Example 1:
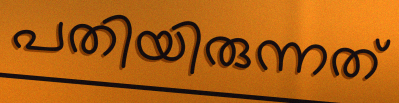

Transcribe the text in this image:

പതിയിരുന്നത്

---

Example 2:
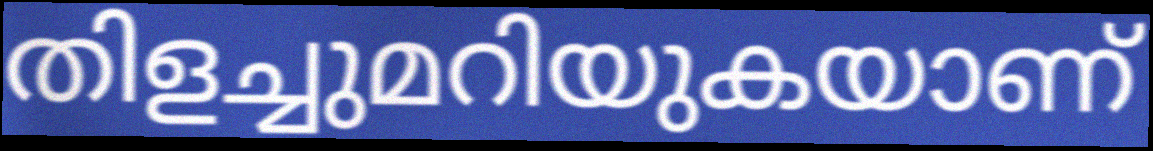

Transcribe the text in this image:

തിളച്ചുമറിയുകയാണ്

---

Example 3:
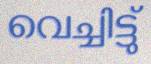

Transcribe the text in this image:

വെച്ചിട്ടു്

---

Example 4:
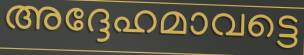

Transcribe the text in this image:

അദ്ദേഹമാവട്ടെ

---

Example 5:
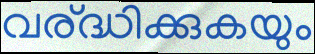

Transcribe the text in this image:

വര്ദ്ധിക്കുകയും